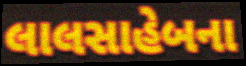
લાલસાહેબના